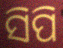
ସିପି